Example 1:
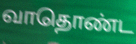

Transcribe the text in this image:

வாதொண்ட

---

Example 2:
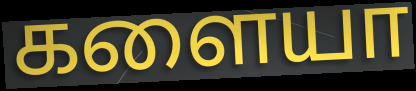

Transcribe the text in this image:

களையா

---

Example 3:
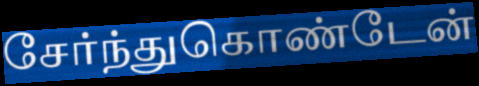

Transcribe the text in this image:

சேர்ந்துகொண்டேன்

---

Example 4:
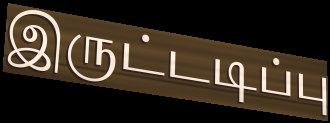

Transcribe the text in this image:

இருட்டடிப்பு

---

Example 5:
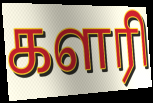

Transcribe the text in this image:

களரி